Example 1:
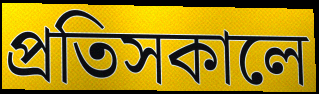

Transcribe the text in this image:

প্রতিসকালে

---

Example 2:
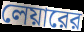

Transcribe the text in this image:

লেয়ারের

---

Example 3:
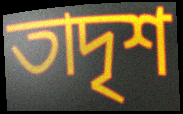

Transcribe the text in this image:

তাদৃশ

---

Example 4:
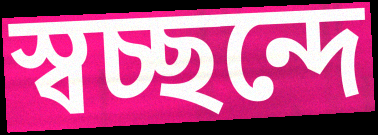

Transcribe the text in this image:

স্বচ্ছন্দে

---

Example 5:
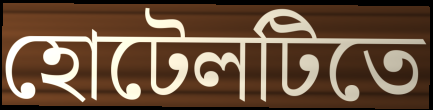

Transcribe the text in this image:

হোটেলটিতে